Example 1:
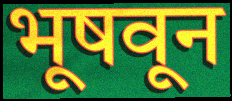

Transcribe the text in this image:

भूषवून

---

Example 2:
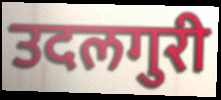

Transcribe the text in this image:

उदलगुरी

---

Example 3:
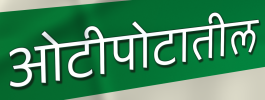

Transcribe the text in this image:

ओटीपोटातील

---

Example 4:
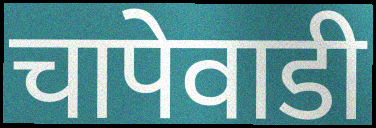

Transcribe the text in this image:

चापेवाडी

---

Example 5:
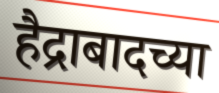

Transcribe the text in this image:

हैद्राबादच्या